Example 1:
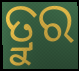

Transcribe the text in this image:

ତ୍ରୁର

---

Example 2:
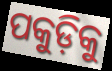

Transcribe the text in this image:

ପକୁଡ଼ିକୁ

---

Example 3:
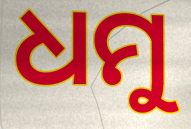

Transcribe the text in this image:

ଧମୁ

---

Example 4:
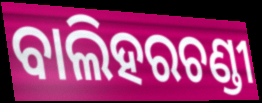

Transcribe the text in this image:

ବାଲିହରଚଣ୍ଡୀ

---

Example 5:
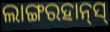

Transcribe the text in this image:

ଲାଙ୍ଗରହାନ୍‌ସ୍